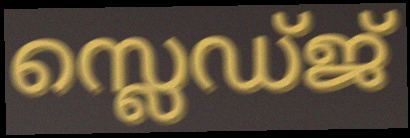
സ്ലെഡ്ജ്